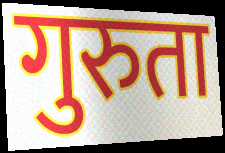
गुरुता